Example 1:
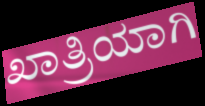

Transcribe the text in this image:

ಖಾತ್ರಿಯಾಗಿ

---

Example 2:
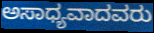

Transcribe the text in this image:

ಅಸಾಧ್ಯವಾದವರು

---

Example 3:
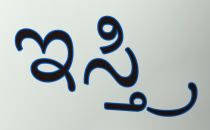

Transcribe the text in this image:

ಇಸ್ತ್ರಿ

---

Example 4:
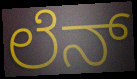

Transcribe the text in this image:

ಲೆನ್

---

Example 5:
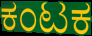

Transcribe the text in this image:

ಕಂಟಕ